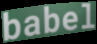
babel